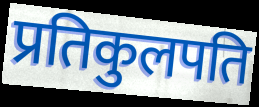
प्रतिकुलपति